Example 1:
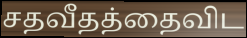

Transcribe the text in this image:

சதவீதத்தைவிட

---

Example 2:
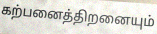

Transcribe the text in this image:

கற்பனைத்திறனையும்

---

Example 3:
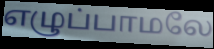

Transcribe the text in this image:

எழுப்பாமலே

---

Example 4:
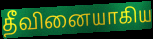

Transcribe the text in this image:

தீவினையாகிய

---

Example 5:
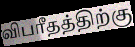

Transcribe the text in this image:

விபரீதத்திற்கு